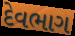
દેવભાગ